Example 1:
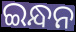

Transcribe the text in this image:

ଇନ୍ଧନ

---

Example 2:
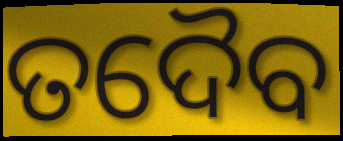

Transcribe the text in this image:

ତଦୈବ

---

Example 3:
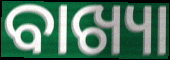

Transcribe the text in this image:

ବାଖ୍ୟା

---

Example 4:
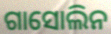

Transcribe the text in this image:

ଗାସୋଲିନ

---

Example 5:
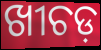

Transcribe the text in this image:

ଖୀଚଡ଼